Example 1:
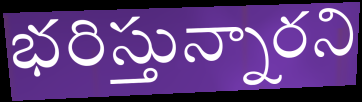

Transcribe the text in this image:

భరిస్తున్నారని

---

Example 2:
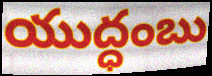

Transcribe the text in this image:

యుద్ధంబు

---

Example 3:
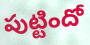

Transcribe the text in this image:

పుట్టిందో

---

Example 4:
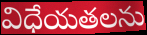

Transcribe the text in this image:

విధేయతలను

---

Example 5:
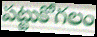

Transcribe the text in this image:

పట్టుకోగలం